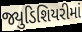
જ્યુડિશિયરીમાં